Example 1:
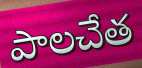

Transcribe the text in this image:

పాలచేత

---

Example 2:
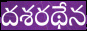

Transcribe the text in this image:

దశరథేన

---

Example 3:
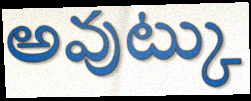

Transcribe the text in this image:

అవుట్కు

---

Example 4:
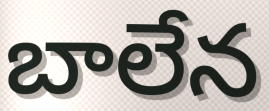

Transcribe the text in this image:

బాలేన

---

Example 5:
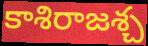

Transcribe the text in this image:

కాశిరాజశ్చ